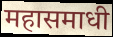
महासमाधी